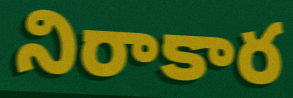
నిరాకార